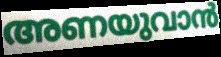
അണയുവാൻ